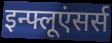
इन्फ्लूएंसर्स